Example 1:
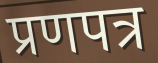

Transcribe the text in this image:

प्रणपत्र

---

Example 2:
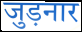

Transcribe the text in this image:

जुड़नार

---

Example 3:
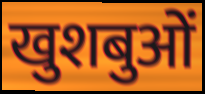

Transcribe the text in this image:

खुशबुओं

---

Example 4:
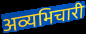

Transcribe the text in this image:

अव्यभिचारी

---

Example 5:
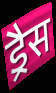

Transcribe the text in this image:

ड्रैस